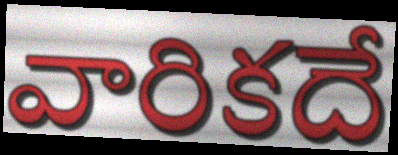
వారికదే